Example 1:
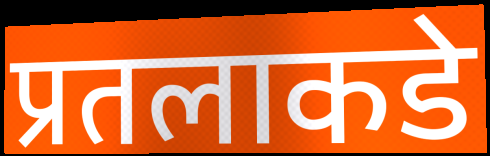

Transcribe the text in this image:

प्रतलाकडे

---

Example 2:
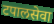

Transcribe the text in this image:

टपालसेवा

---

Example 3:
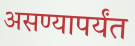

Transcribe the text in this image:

असण्यापर्यंत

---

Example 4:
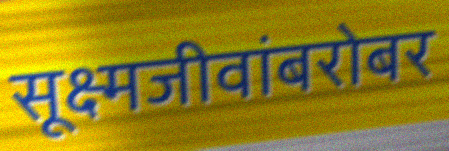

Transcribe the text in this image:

सूक्ष्मजीवांबरोबर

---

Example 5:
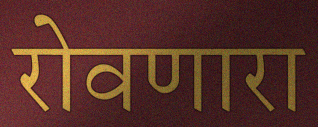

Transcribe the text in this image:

रोवणारा